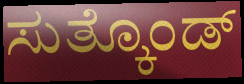
ಸುತ್ಕೊಂಡ್